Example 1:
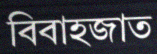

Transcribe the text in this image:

বিবাহজাত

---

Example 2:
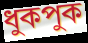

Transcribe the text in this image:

ধুকপুক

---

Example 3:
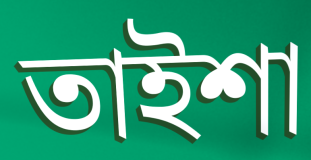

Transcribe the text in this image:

তাইশা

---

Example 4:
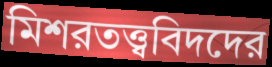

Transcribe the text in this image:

মিশরতত্ত্ববিদদের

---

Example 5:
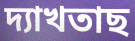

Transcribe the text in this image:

দ্যাখতাছ